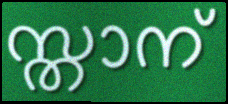
സ്താന്